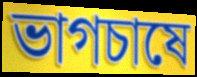
ভাগচাষে